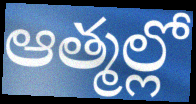
ఆత్మల్లో